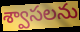
శ్వాసలను